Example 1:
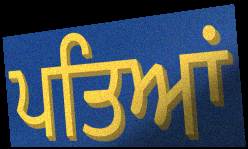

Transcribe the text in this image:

ਪਤਿਆਂ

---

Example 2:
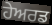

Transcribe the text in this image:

ਹੇਅਰਡ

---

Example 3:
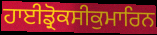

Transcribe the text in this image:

ਹਾਈਡ੍ਰੋਕਸੀਕੁਮਾਰਿਨ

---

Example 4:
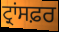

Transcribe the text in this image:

ਟ੍ਰਾਂਸਫ਼ਰ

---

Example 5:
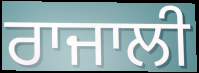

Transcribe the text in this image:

ਰਾਜਾਲੀ